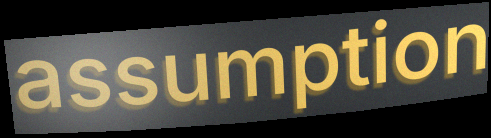
assumption